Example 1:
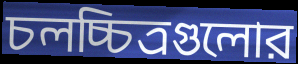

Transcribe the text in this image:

চলচ্চিত্রগুলোর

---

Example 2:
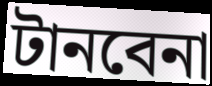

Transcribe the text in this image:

টানবেনা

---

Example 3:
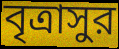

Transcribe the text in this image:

বৃত্রাসুর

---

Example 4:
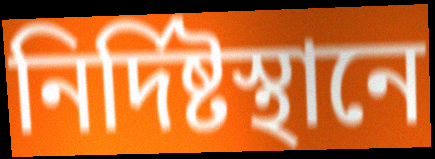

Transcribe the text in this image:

নির্দিষ্টস্থানে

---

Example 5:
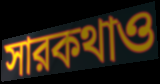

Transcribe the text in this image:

সারকথাও